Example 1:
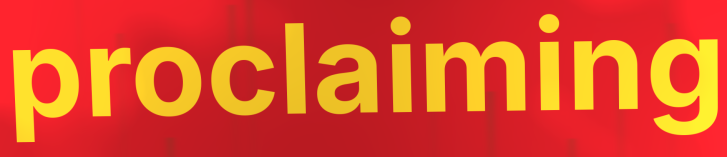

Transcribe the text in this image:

proclaiming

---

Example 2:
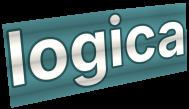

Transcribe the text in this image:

logica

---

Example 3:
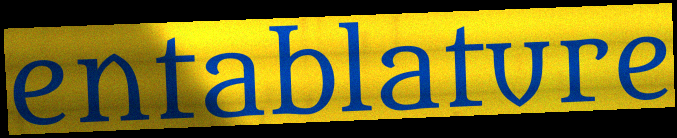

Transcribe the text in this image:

entablature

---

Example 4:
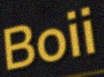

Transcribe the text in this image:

Boii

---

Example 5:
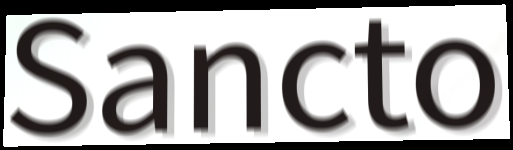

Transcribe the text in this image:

Sancto